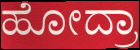
ಹೋದ್ರಾ